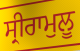
ਸ੍ਰੀਰਾਮੁਲੂ